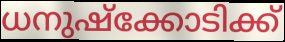
ധനുഷ്ക്കോടിക്ക്